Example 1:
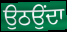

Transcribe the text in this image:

ਉਠਉਂਦਾ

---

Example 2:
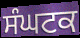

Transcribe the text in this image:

ਸੰਘਟਕ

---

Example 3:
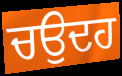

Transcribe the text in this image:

ਚਉਦਹ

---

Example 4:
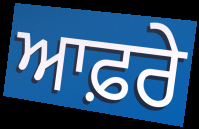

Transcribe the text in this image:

ਆਫ਼ਰੇ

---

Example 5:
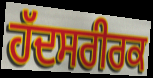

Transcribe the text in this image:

ਹੱਦਸਰੀਰਕ